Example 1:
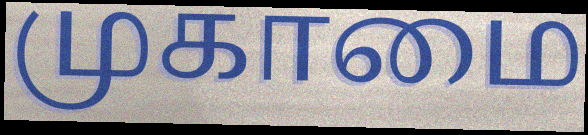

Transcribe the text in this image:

முகாமை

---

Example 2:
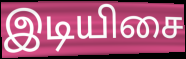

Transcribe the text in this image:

இடியிசை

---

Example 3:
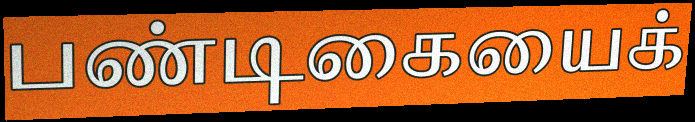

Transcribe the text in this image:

பண்டிகையைக்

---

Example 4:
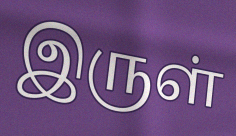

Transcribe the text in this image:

இருள்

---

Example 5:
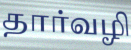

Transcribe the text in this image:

தார்வழி